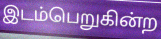
இடம்பெறுகின்ற